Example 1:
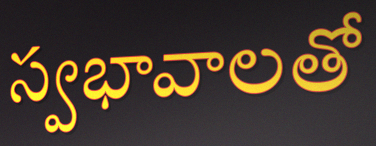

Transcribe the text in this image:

స్వభావాలతో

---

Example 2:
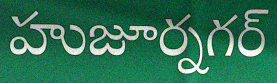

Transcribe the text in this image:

హుజూర్నగర్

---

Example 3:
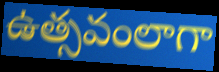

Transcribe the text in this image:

ఉత్సవంలాగా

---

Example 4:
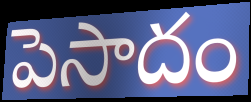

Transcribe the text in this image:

పెసాదం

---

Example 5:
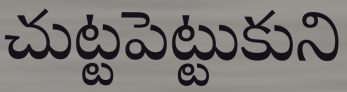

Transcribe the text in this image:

చుట్టపెట్టుకుని